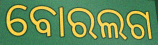
ବୋରଲଗ